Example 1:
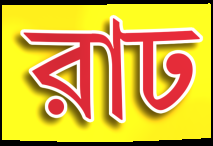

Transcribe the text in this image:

রাঢ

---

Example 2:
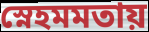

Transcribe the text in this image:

স্নেহমমতায়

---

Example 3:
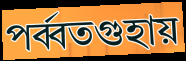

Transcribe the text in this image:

পর্ব্বতগুহায়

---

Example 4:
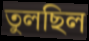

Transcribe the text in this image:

তুলছিল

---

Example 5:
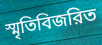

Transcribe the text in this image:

স্মৃতিবিজরিত